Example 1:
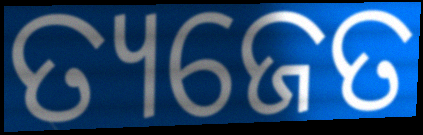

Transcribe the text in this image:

ତ୍ୟଜେତ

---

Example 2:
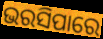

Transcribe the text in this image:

ଭରସିପାରେ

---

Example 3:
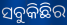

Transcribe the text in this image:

ସବୁକିଛିର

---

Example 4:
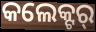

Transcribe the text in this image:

କଲେକ୍ଟର୍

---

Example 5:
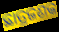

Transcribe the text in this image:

ଛାତ୍ରଜଣକ